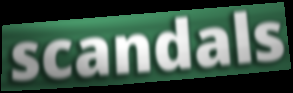
scandals